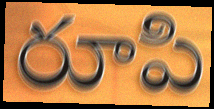
రూపి